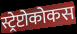
स्ट्रेप्टोकोकस